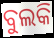
ବୁଲକି